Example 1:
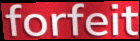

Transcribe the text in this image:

forfeit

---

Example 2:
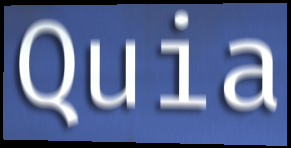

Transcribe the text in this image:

Quia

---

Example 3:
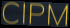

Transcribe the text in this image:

CIPM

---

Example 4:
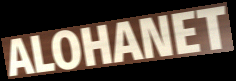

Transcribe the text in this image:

ALOHANET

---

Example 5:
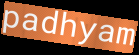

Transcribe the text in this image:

padhyam